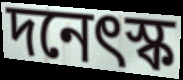
দনেৎস্ক